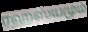
ரஹஸ்யமும்